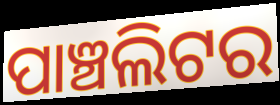
ପାଞ୍ଚଲିଟର